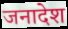
जनादेश